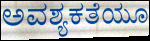
ಅವಶ್ಯಕತೆಯೂ